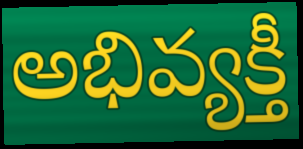
అభివ్యక్తీ